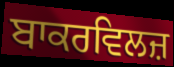
ਬਾਕਰਵਿਲਜ਼